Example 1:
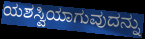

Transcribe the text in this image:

ಯಶಸ್ವಿಯಾಗುವುದನ್ನು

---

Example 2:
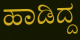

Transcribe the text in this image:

ಹಾಡಿದ್ದ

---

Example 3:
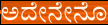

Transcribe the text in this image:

ಅದೇನೇನೊ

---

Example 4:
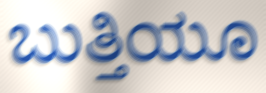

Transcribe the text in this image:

ಬುತ್ತಿಯೂ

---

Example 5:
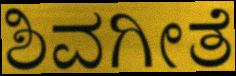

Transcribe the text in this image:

ಶಿವಗೀತೆ